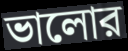
ভালোর